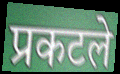
प्रकटले